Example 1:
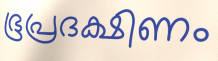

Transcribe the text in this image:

ഭൂപ്രദക്ഷിണം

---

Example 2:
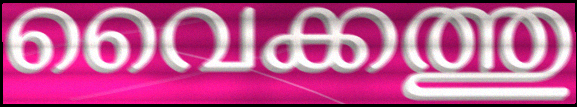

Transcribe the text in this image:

വൈക്കത്തു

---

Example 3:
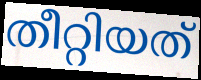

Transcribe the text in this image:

തീറ്റിയത്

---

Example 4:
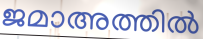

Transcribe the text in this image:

ജമാഅത്തിൽ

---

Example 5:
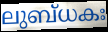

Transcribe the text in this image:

ലുബ്ധകഃ